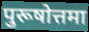
पुरूषोत्तमा